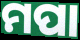
ମପା